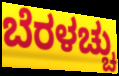
ಬೆರಳಚ್ಚು